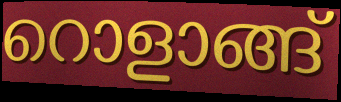
റൊളാങ്ങ്